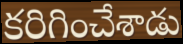
కరిగించేశాడు